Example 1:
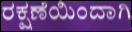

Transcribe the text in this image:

ರಕ್ಷಣೆಯಿಂದಾಗಿ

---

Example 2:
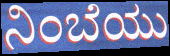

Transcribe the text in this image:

ನಿಂಬೆಯು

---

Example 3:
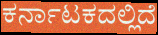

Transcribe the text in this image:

ಕರ್ನಾಟಕದಲ್ಲಿದೆ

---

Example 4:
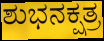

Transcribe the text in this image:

ಶುಭನಕ್ಷತ್ರ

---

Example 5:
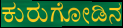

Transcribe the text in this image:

ಕುರುಗೋಡಿನ